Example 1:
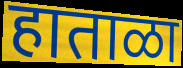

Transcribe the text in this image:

हाताळा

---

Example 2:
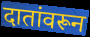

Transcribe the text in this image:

दातांवरून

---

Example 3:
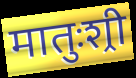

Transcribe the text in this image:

मातुःश्री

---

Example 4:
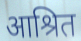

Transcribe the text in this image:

आश्रित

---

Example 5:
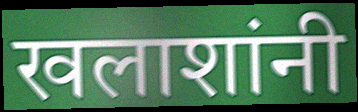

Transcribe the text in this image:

खलाशांनी